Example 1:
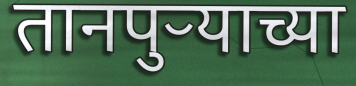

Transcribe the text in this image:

तानपुऱ्याच्या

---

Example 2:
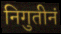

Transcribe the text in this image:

निगुतीनं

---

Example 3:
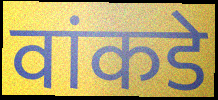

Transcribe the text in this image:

वांकडे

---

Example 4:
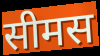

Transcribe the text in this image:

सीमस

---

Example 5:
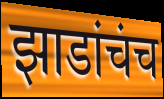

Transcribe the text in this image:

झाडांचंच